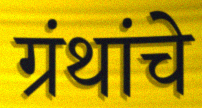
ग्रंथांचे